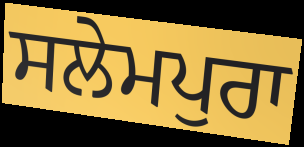
ਸਲੇਮਪੁਰਾ